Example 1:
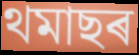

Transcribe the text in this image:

থমাছৰ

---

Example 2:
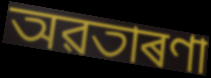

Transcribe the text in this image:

অৱতাৰণা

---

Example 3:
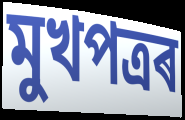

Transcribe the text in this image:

মুখপত্ৰৰ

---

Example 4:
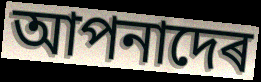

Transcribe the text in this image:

আপনাদেৰ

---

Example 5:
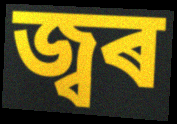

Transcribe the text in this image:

জ্বৰ